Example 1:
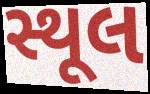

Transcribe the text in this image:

સ્થૂલ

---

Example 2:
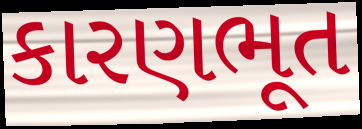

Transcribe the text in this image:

કારણભૂત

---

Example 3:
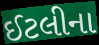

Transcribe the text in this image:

ઈટલીના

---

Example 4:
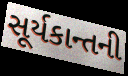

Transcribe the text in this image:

સૂર્યકાન્તની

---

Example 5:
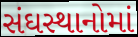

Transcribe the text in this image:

સંઘસ્થાનોમાં